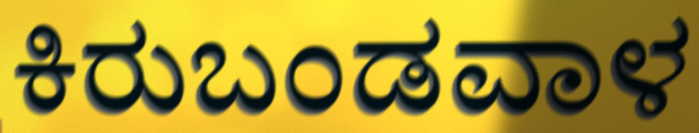
ಕಿರುಬಂಡವಾಳ